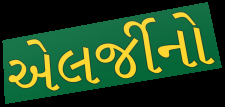
એલર્જીનો